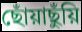
ছোঁয়াছুঁয়ি